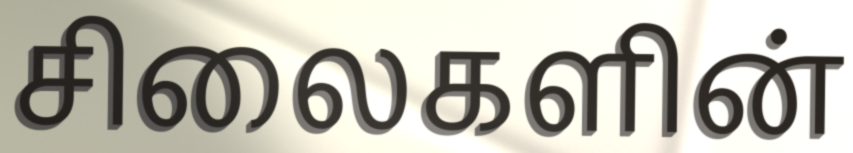
சிலைகளின்